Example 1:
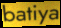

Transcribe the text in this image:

batiya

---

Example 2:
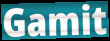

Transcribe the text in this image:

Gamit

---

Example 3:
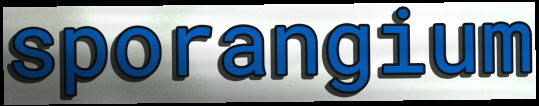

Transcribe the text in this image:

sporangium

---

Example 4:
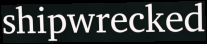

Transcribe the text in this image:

shipwrecked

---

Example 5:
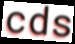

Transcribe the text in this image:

cds